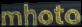
mhoto